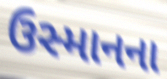
ઉસ્માનના